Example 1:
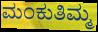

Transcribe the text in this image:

ಮಂಕುತಿಮ್ಮ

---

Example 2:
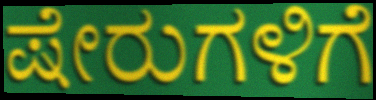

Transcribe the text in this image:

ಷೇರುಗಳಿಗೆ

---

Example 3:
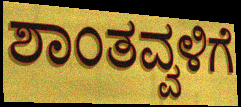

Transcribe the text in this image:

ಶಾಂತವ್ವಳಿಗೆ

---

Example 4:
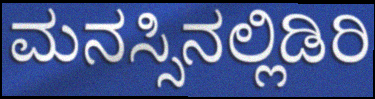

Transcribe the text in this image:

ಮನಸ್ಸಿನಲ್ಲಿಡಿರಿ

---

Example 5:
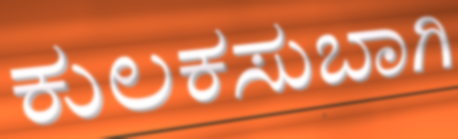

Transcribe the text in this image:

ಕುಲಕಸುಬಾಗಿ